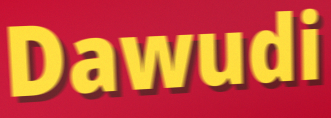
Dawudi